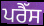
ਪਰੈੱਸ